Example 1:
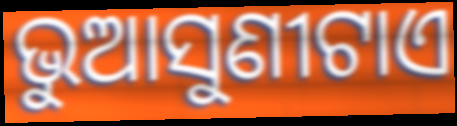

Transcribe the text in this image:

ଭୁଆସୁଣୀଟାଏ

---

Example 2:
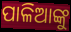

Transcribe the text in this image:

ପାଳିଆଙ୍କୁ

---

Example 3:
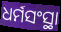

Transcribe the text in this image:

ଧର୍ମସଂସ୍ଥା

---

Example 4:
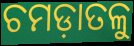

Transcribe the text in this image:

ଚମଡ଼ାତଳୁ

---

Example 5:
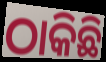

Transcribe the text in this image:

ଠାକିଛି